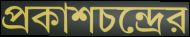
প্রকাশচন্দ্রের